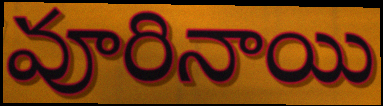
వూరినాయి